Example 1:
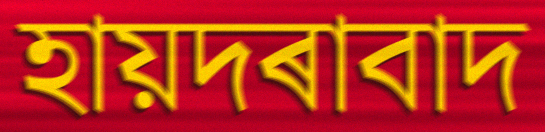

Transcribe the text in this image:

হায়দৰাবাদ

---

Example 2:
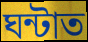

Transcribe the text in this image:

ঘন্টাত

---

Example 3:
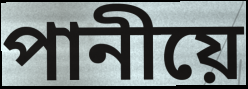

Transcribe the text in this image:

পানীয়ে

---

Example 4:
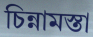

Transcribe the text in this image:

চিন্নামস্তা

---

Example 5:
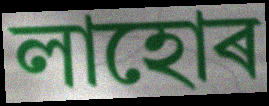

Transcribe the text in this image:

লাহোৰ